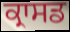
ਕ੍ਰਾਸਡ